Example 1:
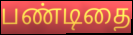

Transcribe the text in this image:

பண்டிதை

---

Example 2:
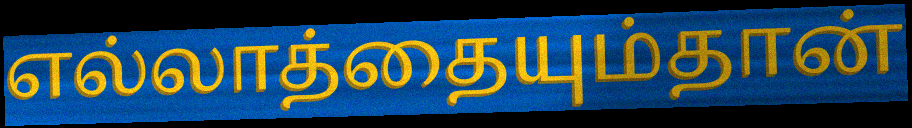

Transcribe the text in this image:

எல்லாத்தையும்தான்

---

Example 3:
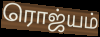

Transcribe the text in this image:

ரொஜ்யம்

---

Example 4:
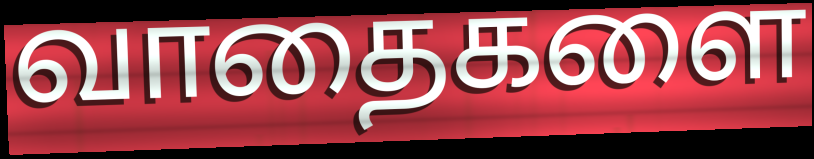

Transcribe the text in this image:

வாதைகளை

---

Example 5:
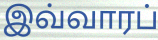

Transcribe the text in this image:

இவ்வாரப்